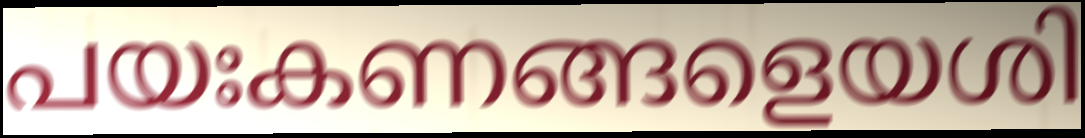
പയഃകണങ്ങളെയശി